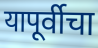
यापूर्वीचा